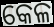
କେଳ